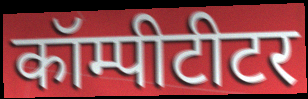
कॉम्पीटीटर